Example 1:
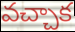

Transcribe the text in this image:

వచ్చాక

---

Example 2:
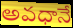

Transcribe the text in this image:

అవధానే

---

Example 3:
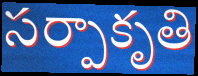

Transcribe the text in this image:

సర్పాకృతి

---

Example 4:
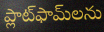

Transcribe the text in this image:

ప్లాట్‌ఫామ్‌లను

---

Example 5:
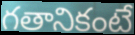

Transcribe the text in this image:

గతానికంటే